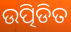
ଉତ୍ପିଡିତ